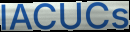
IACUCs